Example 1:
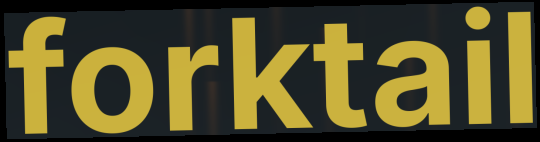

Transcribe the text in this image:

forktail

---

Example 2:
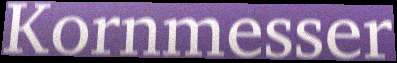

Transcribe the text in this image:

Kornmesser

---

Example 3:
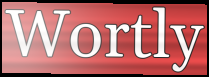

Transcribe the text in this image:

Wortly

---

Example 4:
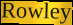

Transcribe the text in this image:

Rowley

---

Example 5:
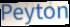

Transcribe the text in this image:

Peyton